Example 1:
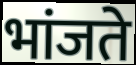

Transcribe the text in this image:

भांजते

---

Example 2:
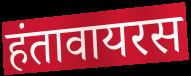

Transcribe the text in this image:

हंतावायरस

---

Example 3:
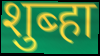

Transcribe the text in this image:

शुब्हा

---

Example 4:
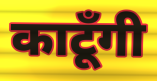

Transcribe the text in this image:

काटूँगी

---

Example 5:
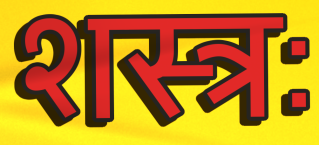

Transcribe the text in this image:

शस्त्रः